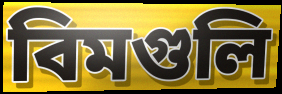
বিমগুলি